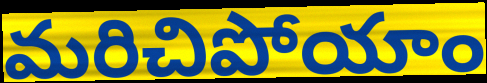
మరిచిపోయాం